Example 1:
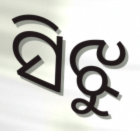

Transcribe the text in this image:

ସିଝୁ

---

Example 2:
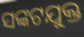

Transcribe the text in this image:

ସଙ୍କଟଯୁକ୍ତ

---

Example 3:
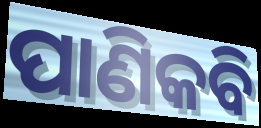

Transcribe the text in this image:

ପାଣିକବି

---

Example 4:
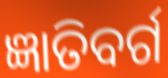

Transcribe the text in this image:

ଜ୍ଞାତିବର୍ଗ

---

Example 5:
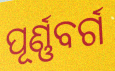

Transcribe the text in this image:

ପୂର୍ଣ୍ଣବର୍ଗ